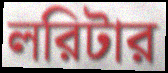
লরিটার